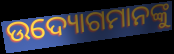
ଉଦ୍ୟୋଗମାନଙ୍କୁ